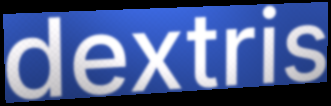
dextris